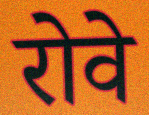
रोवे